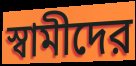
স্বামীদের